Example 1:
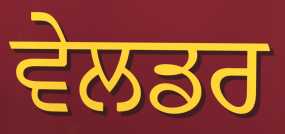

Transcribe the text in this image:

ਵੇਲਡਰ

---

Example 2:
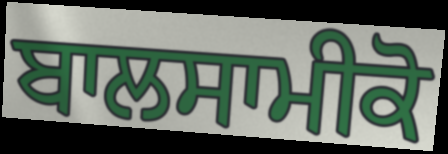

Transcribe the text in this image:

ਬਾਲਸਾਮੀਕੋ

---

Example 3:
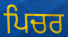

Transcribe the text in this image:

ਪਿਚਰ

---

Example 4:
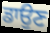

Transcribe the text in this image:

ਡਾਉਣ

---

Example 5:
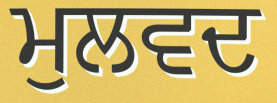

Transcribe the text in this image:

ਮੁਲਵਦ